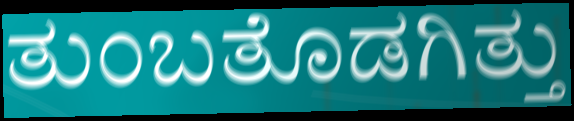
ತುಂಬತೊಡಗಿತ್ತು